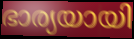
ഭാര്യയായി